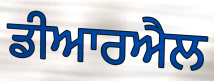
ਡੀਆਰਐਲ